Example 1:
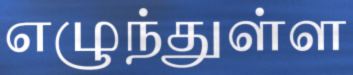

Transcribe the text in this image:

எழுந்துள்ள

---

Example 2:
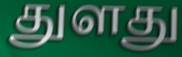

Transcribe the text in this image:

துளது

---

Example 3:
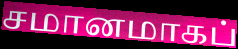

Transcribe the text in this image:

சமானமாகப்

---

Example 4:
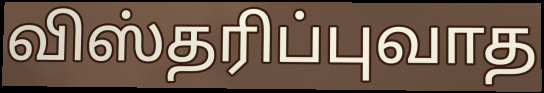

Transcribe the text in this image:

விஸ்தரிப்புவாத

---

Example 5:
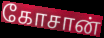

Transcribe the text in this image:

கோசான்